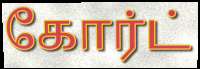
கோர்ட்